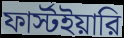
ফার্স্টইয়ারি